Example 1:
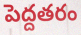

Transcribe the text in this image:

పెద్దతరం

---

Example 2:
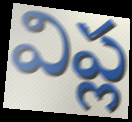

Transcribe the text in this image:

విప్ల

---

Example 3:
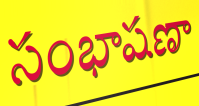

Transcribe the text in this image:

సంభాషణా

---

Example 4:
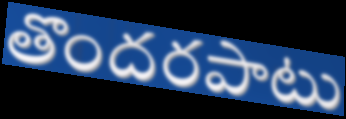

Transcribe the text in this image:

తొందరపాటు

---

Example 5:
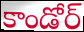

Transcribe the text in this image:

కాండోర్